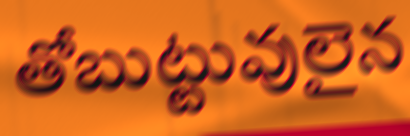
తోబుట్టువులైన